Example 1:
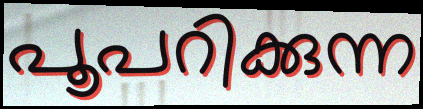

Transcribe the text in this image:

പൂപറിക്കുന്ന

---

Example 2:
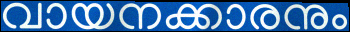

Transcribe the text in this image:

വായനക്കാരനും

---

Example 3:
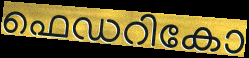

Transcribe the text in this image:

ഫെഡറികോ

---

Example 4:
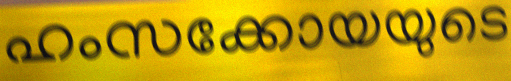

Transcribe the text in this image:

ഹംസക്കോയയുടെ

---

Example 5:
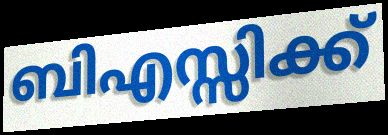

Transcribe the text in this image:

ബിഎസ്സിക്ക്